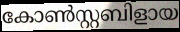
കോൺസ്റ്റബിളായ